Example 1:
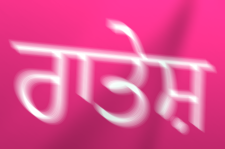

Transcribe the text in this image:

ਰਾਤੇਸ਼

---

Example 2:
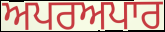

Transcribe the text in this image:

ਅਪਰਅਪਾਰ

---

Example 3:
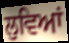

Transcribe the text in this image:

ਲੁਵਿਆਂ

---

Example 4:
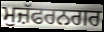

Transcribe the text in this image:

ਮੁਜ਼ੱਫਰਨਗਰ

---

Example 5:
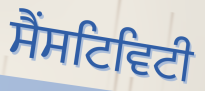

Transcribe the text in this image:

ਸੈਂਸਟਿਵਿਟੀ